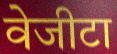
वेजीटा